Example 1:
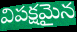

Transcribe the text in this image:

విపక్షమైన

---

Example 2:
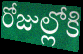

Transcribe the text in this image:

రోజుల్లోకి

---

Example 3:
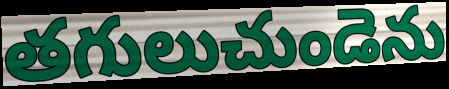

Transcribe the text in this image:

తగులుచుండెను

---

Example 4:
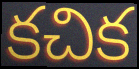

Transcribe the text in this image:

కచిక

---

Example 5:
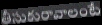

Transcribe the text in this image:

తీసుకురావాలంటే